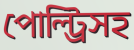
পোল্ট্রিসহ